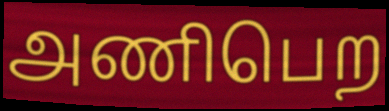
அணிபெற